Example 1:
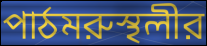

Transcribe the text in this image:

পাঠমরুস্থলীর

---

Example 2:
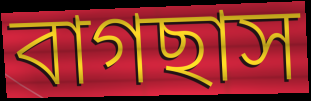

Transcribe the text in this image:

বাগছাস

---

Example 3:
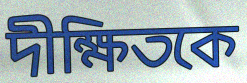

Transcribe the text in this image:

দীক্ষিতকে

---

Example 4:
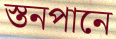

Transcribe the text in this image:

স্তনপানে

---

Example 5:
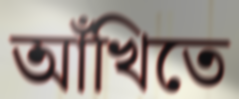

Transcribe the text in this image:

আঁখিতে